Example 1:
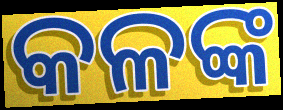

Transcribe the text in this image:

କଳଙ୍କ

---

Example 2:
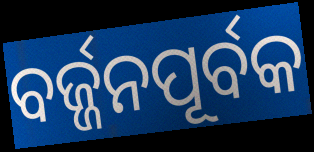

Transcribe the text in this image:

ବର୍ଜ୍ଜନପୂର୍ବକ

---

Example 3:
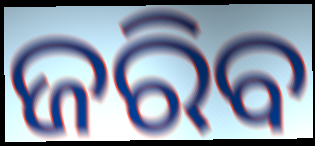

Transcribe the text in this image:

ଜରିବ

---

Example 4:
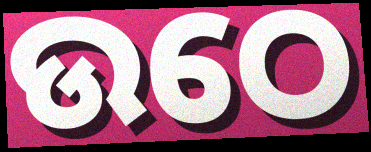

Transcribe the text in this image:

ଉଠେ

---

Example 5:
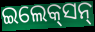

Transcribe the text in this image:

ଇଲେକ୍‌ସନ୍